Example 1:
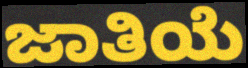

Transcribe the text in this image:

ಜಾತಿಯೆ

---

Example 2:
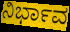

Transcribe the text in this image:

ನಿರ್ಭಾವ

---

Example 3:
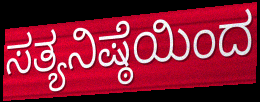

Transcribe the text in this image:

ಸತ್ಯನಿಷ್ಠೆಯಿಂದ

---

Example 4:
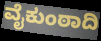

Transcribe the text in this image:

ವೈಕುಂಠಾದಿ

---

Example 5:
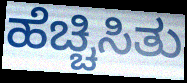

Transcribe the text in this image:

ಹೆಚ್ಚಿಸಿತು